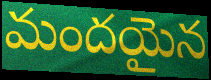
మందయైన